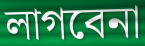
লাগবেনা